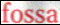
fossa